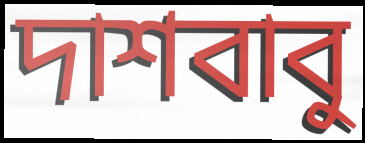
দাশবাবু